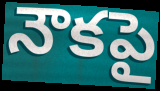
నౌకపై